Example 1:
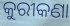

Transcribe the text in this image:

କୁରୀକଣା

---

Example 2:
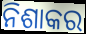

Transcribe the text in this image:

ନିଶାକର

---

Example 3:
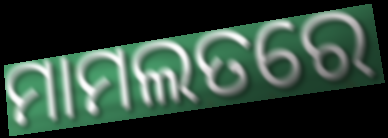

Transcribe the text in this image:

ମାମଲତରେ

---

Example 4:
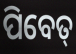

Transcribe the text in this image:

ପିବେତ୍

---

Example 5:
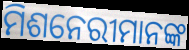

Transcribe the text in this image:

ମିଶନେରୀମାନଙ୍କ